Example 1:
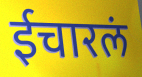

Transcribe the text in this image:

ईचारलं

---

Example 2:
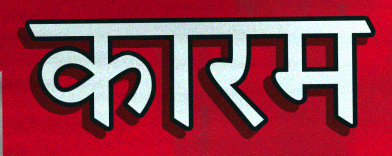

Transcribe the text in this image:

कारम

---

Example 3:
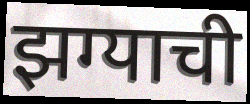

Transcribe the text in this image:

झग्याची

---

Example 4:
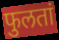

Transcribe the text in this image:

फुलतां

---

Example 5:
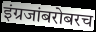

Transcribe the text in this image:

इंग्रजांबरोबरच